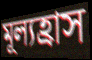
মূল্যহ্রাস